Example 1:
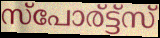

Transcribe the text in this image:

സ്പോര്ട്ട്സ്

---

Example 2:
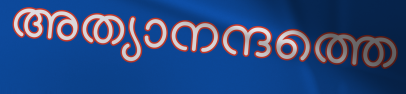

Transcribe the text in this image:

അത്യാനന്ദത്തെ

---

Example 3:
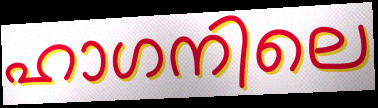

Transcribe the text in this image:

ഹാഗനിലെ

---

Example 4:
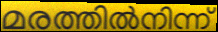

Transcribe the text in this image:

മരത്തിൽനിന്ന്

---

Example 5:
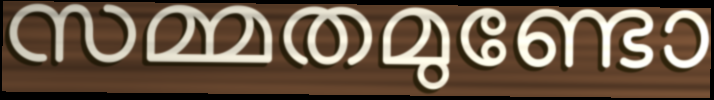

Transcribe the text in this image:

സമ്മതമുണ്ടോ